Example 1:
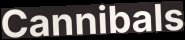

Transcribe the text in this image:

Cannibals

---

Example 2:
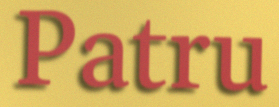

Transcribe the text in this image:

Patru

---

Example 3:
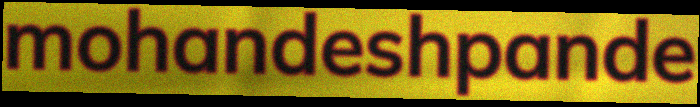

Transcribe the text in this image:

mohandeshpande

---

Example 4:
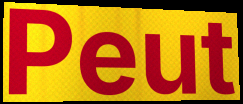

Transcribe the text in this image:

Peut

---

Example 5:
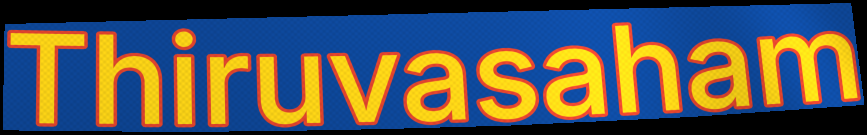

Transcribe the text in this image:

Thiruvasaham